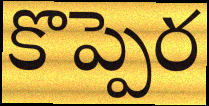
కొప్పెర